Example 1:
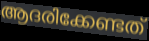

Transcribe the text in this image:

ആദരിക്കേണ്ടത്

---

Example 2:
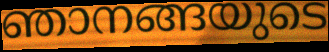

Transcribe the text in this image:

ഞാനങ്ങയുടെ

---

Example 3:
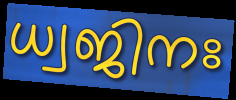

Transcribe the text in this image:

ധ്വജിനഃ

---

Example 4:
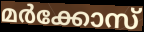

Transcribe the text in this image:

മർക്കോസ്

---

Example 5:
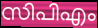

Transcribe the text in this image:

സിപിഎം